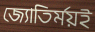
জ্যোতির্ময়ই